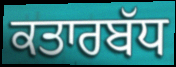
ਕਤਾਰਬੱਧ